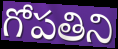
గోపతిని